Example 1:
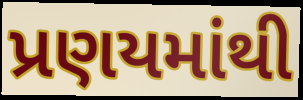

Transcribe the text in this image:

પ્રણયમાંથી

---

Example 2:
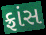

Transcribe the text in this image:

ફ્રાંસ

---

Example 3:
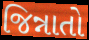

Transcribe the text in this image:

જિન્નાતો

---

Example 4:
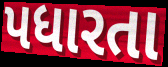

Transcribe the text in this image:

પધારતા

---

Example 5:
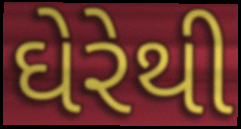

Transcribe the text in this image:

ઘેરેથી